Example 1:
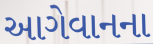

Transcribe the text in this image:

આગેવાનના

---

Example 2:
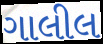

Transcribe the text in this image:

ગાલીલ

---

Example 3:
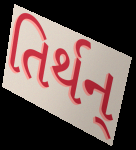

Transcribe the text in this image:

તિર્થન્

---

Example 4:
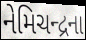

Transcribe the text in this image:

નેમિચન્દ્રના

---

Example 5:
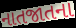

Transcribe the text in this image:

નાતજાતના